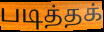
படித்தக்